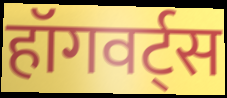
हॉगवर्ट्स